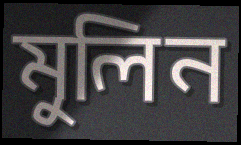
মুলিন